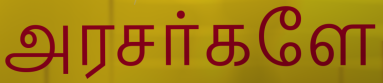
அரசர்களே